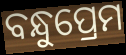
ବନ୍ଧୁପ୍ରେମ